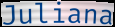
Juliana